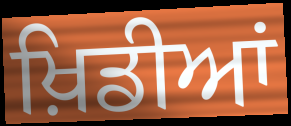
ਖ਼ਿਡੀਆਂ